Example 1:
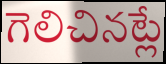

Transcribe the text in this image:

గెలిచినట్లే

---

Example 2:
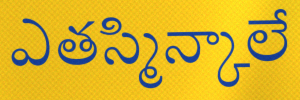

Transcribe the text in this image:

ఎతస్మిన్కాలే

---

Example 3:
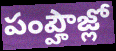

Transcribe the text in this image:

పంప్హౌజ్లో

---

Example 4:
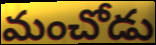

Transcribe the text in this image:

మంచోడు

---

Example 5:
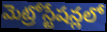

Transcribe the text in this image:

మెట్రోస్టేషన్లలో